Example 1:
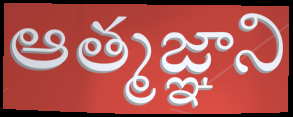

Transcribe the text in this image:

ఆత్మజ్ఞాని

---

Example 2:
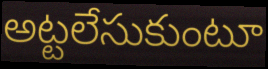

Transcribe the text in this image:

అట్టలేసుకుంటూ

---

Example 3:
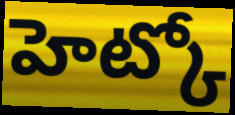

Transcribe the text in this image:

హెట్కో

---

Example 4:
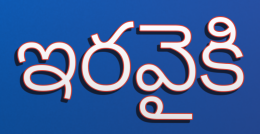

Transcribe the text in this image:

ఇరవైకి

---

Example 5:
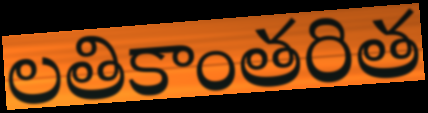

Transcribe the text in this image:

లతికాంతరిత